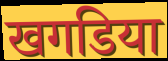
खगडिया